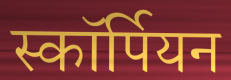
स्कॉर्पियन